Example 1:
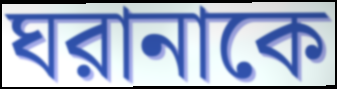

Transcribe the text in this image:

ঘরানাকে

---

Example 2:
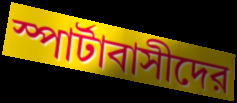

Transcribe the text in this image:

স্পার্টাবাসীদের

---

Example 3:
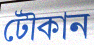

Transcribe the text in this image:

টৌকান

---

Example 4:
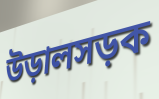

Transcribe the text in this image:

উড়ালসড়ক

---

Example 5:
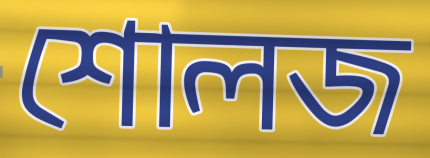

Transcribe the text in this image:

শোলজ